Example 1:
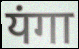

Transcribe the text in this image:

यंगा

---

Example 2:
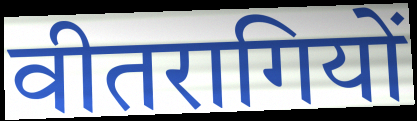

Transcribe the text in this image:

वीतरागियों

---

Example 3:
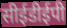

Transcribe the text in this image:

सीईडीईपी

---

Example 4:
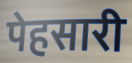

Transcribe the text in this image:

पेहसारी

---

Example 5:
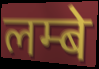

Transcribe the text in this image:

लम्बे